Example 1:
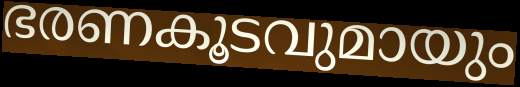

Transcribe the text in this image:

ഭരണകൂടവുമായും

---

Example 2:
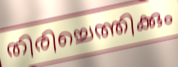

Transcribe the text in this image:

തിരിച്ചെത്തിക്കും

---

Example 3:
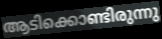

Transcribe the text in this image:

ആടിക്കൊണ്ടിരുന്നു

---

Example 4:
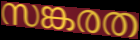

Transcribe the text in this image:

സങ്കരത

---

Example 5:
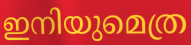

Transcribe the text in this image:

ഇനിയുമെത്ര